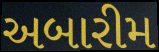
અબારીમ